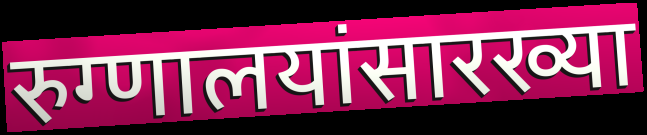
रुग्णालयांसारख्या